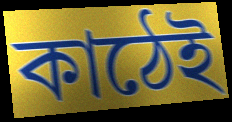
কাঠেই